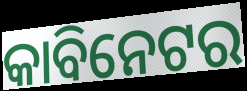
କାବିନେଟର